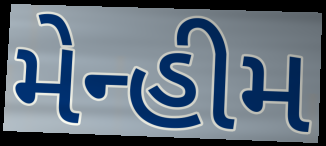
મેન્હીમ